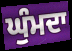
ਘੁੰਮਦਾ